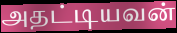
அதட்டியவன்